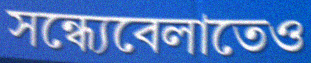
সন্ধ্যেবেলাতেও